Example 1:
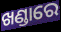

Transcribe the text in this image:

ଖଣ୍ଡାରେ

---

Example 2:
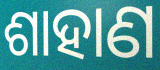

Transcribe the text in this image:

ଶାହାଣ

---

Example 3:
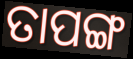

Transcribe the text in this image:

ତାପଙ୍ଗ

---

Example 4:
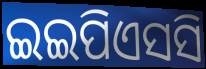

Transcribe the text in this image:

ଇଇପିଏସସି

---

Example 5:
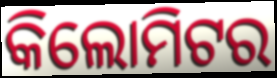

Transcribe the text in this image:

କିଲୋମିଟର